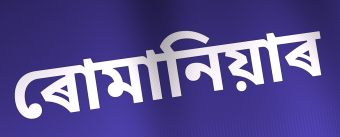
ৰোমানিয়াৰ